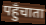
पहुँचाता